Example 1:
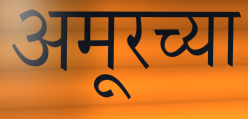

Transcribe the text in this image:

अमूरच्या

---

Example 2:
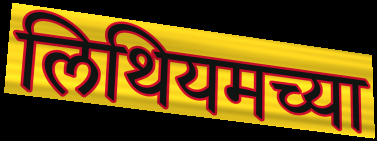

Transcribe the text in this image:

लिथियमच्या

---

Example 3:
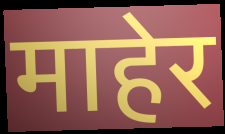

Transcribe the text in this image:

माहेर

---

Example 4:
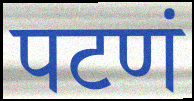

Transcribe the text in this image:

पटणं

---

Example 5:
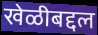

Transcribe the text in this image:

खेळीबद्दल